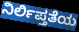
ನಿರ್ಲಿಪ್ತತೆಯ